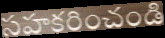
సహకరించండి